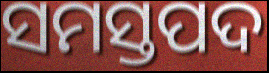
ସମସ୍ତପଦ